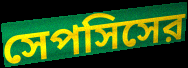
সেপসিসের